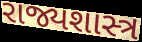
રાજ્યશાસ્ત્ર